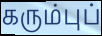
கரும்புப்